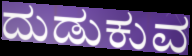
ದುಡುಕುವ